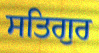
ਸਤਿਗੁਰ